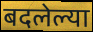
बदलेल्या